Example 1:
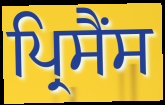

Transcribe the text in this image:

ਪ੍ਰਿਸੈਂਸ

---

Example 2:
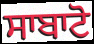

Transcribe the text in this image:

ਸਾਬਾਟੋ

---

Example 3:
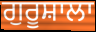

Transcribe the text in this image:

ਗੁਰੂਸ਼ਾਲਾ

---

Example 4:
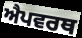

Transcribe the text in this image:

ਐਪਵਰਥ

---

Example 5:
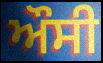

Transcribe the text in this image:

ਔਸੀ